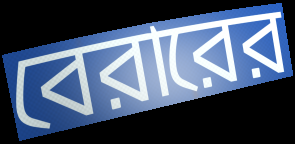
বেরারের